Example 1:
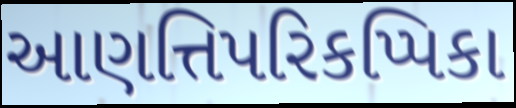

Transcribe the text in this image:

આણત્તિપરિકપ્પિકા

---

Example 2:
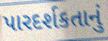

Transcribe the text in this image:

પારદર્શકતાનું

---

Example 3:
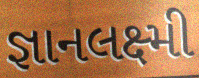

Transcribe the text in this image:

જ્ઞાનલક્ષ્મી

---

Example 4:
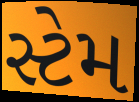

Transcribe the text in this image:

સ્ટેમ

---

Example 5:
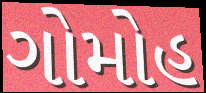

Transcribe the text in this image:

ગોમોહ